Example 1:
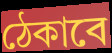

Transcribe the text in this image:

ঠেকাবে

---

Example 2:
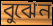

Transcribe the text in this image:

বুঝেন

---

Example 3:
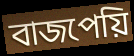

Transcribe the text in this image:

বাজপেয়ি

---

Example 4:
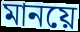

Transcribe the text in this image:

মানয়ে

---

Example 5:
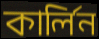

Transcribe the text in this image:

কার্লিন